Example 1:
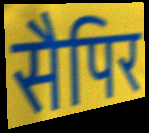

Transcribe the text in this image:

सैपिर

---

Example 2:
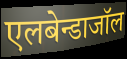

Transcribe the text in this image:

एलबेन्डाजॉल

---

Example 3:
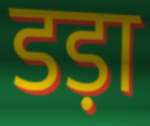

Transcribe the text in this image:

डड़ा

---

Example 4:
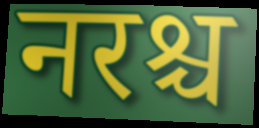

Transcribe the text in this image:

नरश्च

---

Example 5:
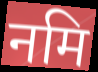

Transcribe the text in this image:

नमि